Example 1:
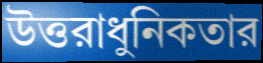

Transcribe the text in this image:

উত্তরাধুনিকতার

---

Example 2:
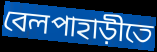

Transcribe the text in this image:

বেলপাহাড়ীতে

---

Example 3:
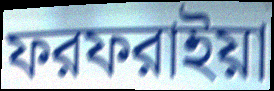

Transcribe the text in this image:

ফরফরাইয়া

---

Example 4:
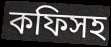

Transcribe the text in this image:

কফিসহ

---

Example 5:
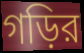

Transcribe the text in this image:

গড়ির